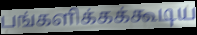
பங்களிக்கக்கூடிய